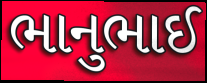
ભાનુભાઈ